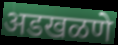
अडखळणे